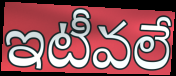
ఇటీవలే